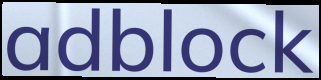
adblock